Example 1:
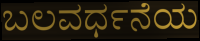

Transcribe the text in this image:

ಬಲವರ್ಧನೆಯ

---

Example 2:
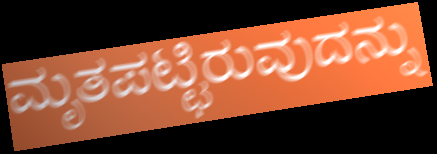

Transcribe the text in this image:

ಮೃತಪಟ್ಟಿರುವುದನ್ನು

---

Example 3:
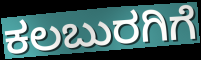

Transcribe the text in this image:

ಕಲಬುರಗಿಗೆ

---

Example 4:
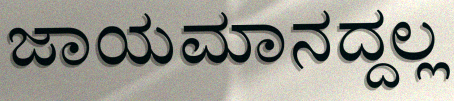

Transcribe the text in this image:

ಜಾಯಮಾನದ್ದಲ್ಲ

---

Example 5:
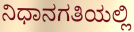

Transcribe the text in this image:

ನಿಧಾನಗತಿಯಲ್ಲಿ